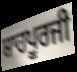
ਸ਼ਾਹਪੂਰਜੀ